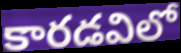
కారడవిలో